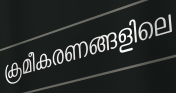
ക്രമീകരണങ്ങളിലെ